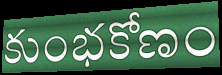
కుంభకోణం